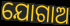
ଯୋଗାଅ